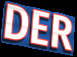
DER